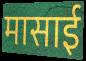
मासाई